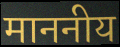
माननीय